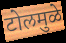
टोलमुळे